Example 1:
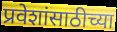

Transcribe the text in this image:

प्रवेशांसाठीच्या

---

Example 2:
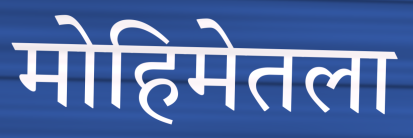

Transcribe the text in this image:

मोहिमेतला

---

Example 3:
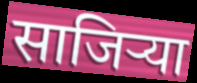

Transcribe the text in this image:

साजिर्‍या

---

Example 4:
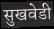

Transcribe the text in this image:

सुखवेडी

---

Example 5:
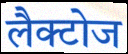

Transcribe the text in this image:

लैक्टोज